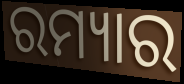
ରମ୍ୟାର